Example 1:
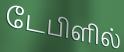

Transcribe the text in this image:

டேபிளில்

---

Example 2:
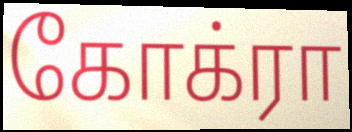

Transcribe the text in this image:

கோக்ரா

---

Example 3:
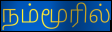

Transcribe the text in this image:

நம்மூரில்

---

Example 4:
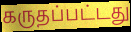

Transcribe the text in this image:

கருதப்பட்டது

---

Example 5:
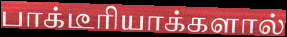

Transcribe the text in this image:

பாக்டீரியாக்களால்